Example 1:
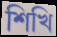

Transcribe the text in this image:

শিখি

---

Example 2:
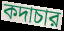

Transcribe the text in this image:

কদাচার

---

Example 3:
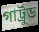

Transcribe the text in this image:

গার্ট্রুড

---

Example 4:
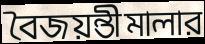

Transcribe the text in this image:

বৈজয়ন্তীমালার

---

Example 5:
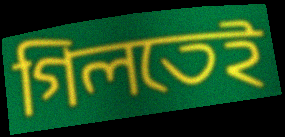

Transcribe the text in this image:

গিলতেই